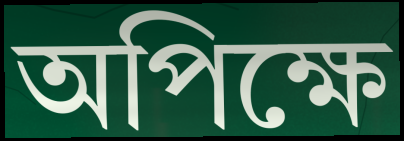
অপিক্ষে